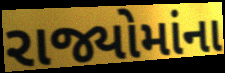
રાજ્યોમાંના